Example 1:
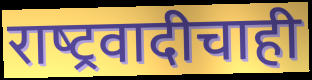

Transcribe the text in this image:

राष्ट्रवादीचाही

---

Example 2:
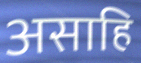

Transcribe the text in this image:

असाहि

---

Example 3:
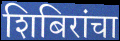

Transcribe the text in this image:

शिबिरांचा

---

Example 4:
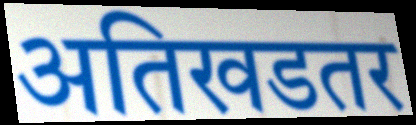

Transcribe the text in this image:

अतिखडतर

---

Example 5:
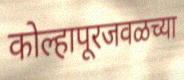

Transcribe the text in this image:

कोल्हापूरजवळच्या